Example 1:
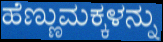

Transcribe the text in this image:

ಹೆಣ್ಣುಮಕ್ಕಳನ್ನು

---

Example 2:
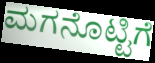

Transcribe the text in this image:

ಮಗನೊಟ್ಟಿಗೆ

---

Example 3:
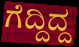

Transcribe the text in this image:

ಗೆದ್ದಿದ್ದ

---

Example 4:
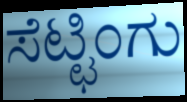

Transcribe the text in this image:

ಸೆಟ್ಟಿಂಗು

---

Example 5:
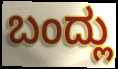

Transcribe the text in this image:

ಬಂದ್ಲು